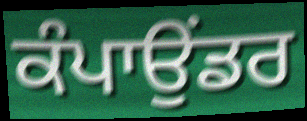
ਕੰਪਾਉਂਡਰ